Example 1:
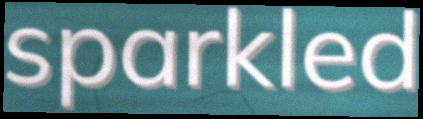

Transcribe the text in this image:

sparkled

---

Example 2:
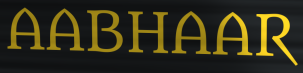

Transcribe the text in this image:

AABHAAR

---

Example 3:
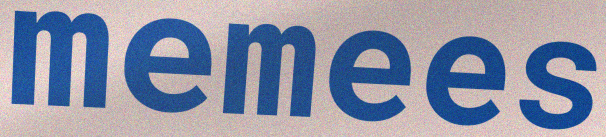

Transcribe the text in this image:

memees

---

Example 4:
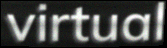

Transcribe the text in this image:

virtual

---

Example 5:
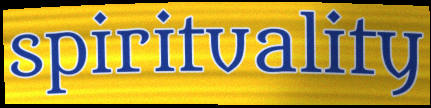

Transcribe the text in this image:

spirituality